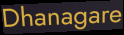
Dhanagare